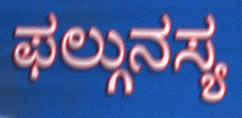
ಫಲ್ಗುನಸ್ಯ